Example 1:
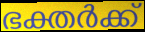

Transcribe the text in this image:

ഭക്തർക്ക്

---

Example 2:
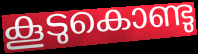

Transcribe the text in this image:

കൂടുകൊണ്ടു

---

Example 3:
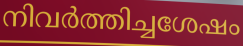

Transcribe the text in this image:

നിവർത്തിച്ചശേഷം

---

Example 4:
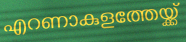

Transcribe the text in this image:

എറണാകുളത്തേയ്ക്ക്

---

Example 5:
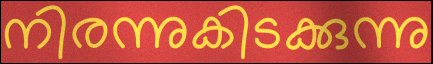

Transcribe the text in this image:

നിരന്നുകിടക്കുന്നു